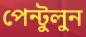
পেন্টুলুন